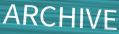
ARCHIVE